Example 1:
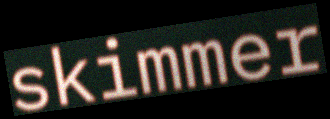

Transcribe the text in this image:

skimmer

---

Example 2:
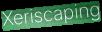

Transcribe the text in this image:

Xeriscaping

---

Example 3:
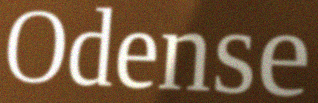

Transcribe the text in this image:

Odense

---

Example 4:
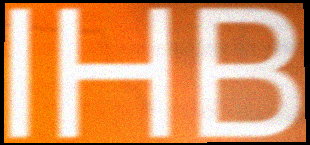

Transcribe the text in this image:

IHB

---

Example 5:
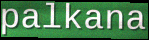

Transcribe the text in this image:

palkana